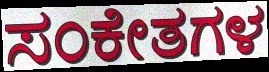
ಸಂಕೇತಗಳ